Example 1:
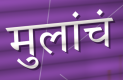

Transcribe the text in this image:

मुलांचं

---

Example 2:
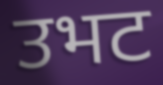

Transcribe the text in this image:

उभट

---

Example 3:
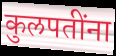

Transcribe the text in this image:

कुलपतींना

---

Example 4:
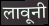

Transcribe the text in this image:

लावूनी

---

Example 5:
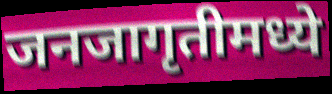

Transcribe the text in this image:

जनजागृतीमध्ये